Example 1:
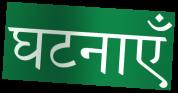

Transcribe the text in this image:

घटनाएँ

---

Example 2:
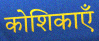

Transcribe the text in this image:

कोशिकाएँ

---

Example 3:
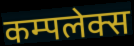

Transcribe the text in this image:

कम्पलेक्स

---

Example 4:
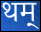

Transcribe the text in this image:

थम्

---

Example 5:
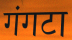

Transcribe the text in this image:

गंगटा